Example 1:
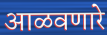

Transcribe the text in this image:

आळवणारे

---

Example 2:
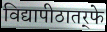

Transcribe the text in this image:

विद्यापीठातर्फे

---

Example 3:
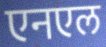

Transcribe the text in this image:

एनएल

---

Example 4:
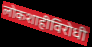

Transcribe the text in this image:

लोकशाहीविरोधी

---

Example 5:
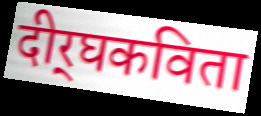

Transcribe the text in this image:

दीर्घकविता